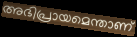
അഭിപ്രായമെന്താണ്